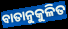
ବାତାନୁକୁଳିତ